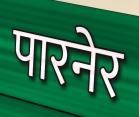
पारनेर